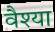
वैश्या